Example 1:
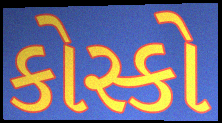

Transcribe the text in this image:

કોસ્કો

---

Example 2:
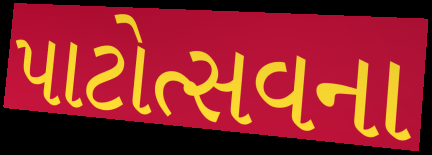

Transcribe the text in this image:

પાટોત્સવના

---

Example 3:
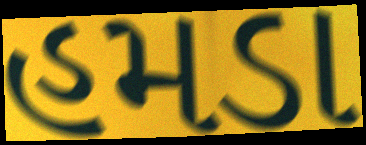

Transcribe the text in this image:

હમડા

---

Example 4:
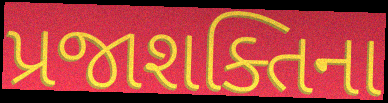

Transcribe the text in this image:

પ્રજાશક્તિના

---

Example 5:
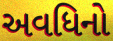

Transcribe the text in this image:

અવધિનો